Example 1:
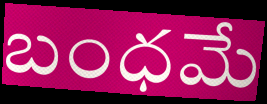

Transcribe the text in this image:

బంధమే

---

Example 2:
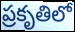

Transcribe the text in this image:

ప్రకృతిలో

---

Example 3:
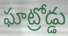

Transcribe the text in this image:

ఘాట్రోడ్డు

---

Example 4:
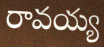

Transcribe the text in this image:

రావయ్య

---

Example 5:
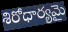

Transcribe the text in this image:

శిరోధార్యమై